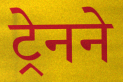
ट्रेनने